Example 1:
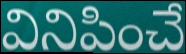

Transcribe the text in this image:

వినిపించే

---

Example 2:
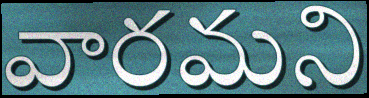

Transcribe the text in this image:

వారమని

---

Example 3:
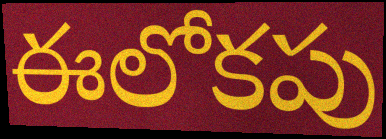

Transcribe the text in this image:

ఈలోకపు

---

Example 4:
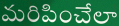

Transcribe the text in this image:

మరిపించేలా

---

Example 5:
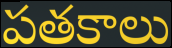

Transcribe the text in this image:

పతకాలు